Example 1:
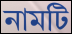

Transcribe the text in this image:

নামটি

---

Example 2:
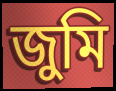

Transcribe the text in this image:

জুমি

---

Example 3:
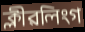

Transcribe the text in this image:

ক্লীৱলিংগ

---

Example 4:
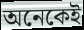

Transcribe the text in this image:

অনেকেই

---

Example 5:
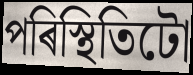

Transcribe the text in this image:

পৰিস্থিতিটো